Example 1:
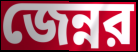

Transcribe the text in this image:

জেন্নর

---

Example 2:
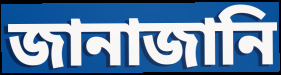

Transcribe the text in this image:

জানাজানি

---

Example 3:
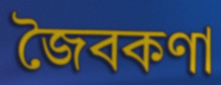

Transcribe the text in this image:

জৈবকণা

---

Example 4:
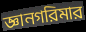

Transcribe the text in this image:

জ্ঞানগরিমার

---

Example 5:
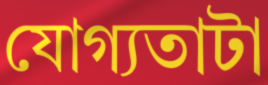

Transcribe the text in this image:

যোগ্যতাটা